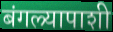
बंगल्यापाशी